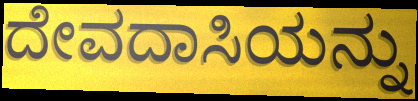
ದೇವದಾಸಿಯನ್ನು